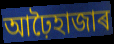
আঢ়ৈহাজাৰ